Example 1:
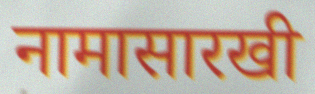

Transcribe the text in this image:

नामासारखी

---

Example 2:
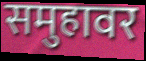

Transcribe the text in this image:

समुहावर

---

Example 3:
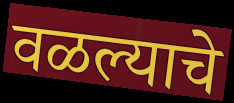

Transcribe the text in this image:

वळल्याचे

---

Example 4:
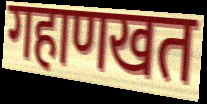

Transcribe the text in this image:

गहाणखत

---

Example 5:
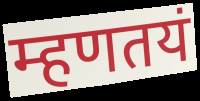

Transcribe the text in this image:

म्हणतयं